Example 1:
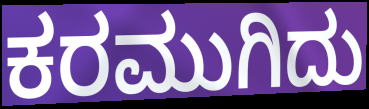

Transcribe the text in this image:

ಕರಮುಗಿದು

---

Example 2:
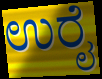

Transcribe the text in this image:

ಉರೈ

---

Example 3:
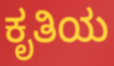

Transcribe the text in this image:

ಕೃತಿಯ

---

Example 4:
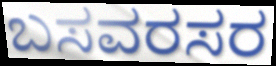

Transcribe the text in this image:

ಬಸವರಸರ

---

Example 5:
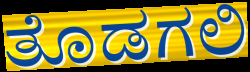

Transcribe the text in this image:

ತೊಡಗಲಿ